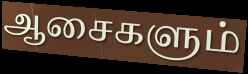
ஆசைகளும்